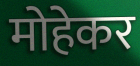
मोहेकर